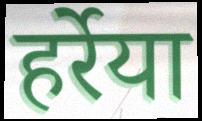
हर्रेया